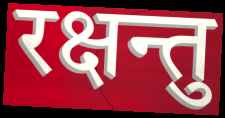
रक्षन्तु